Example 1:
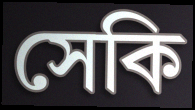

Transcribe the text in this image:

সেকি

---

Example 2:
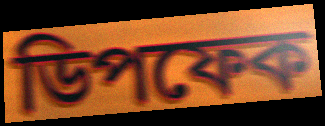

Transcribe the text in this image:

ডিপফেক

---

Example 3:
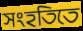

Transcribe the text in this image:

সংহতিতে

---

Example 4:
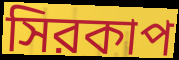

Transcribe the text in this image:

সিরকাপ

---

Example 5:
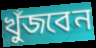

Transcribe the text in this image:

খুঁজবেন